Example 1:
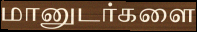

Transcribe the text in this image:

மானுடர்களை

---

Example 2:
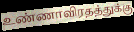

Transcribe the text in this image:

உண்ணாவிரதத்துக்கு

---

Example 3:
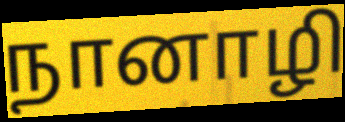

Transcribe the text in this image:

நானாழி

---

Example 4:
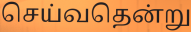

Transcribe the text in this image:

செய்வதென்று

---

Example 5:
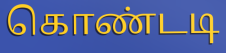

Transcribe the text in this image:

கொண்டடி